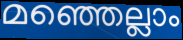
മഞ്ഞെല്ലാം